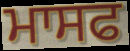
ਮਾਸਫ